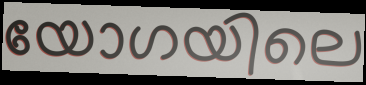
യോഗയിലെ